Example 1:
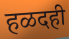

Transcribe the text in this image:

हळदही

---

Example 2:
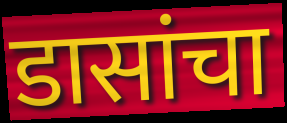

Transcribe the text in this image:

डासांचा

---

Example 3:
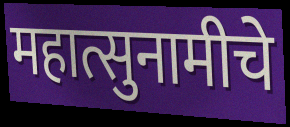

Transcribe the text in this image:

महात्सुनामीचे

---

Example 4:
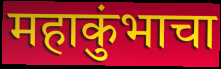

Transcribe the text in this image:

महाकुंभाचा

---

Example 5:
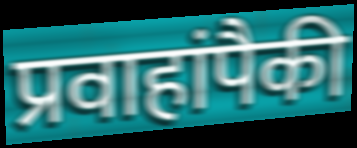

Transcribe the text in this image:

प्रवाहांपैकी